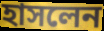
হাসলেন